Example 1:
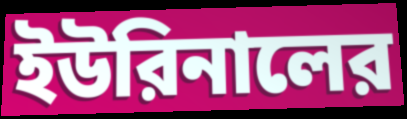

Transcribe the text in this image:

ইউরিনালের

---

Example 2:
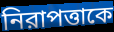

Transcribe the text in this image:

নিরাপত্তাকে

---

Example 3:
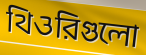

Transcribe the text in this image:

থিওরিগুলো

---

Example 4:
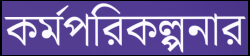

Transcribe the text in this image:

কর্মপরিকল্পনার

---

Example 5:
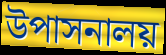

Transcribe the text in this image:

উপাসনালয়